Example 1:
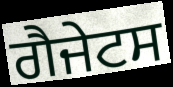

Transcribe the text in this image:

ਗੈਜੇਟਸ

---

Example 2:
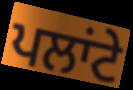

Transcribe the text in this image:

ਪਲਾਂਟੇ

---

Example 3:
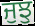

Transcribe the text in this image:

ਜੁਝੁ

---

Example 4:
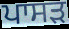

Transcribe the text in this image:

ਪਾਸੜ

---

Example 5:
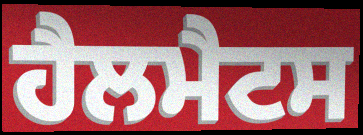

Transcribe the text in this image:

ਹੈਲਮੈਟਸ